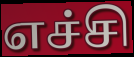
எச்சி